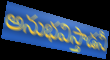
అనుభవిస్తాడనీ